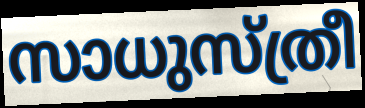
സാധുസ്ത്രീ